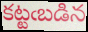
కట్టఁబడిన